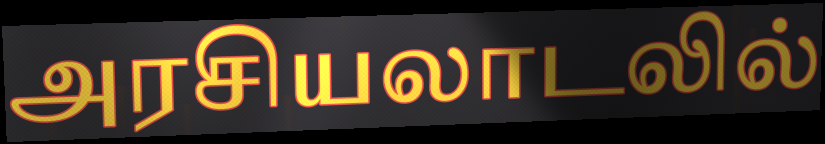
அரசியலாடலில்